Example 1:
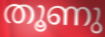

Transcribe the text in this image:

തൂണു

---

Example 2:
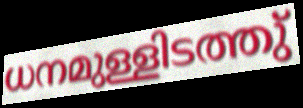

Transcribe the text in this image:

ധനമുള്ളിടത്തു്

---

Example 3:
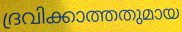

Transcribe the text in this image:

ദ്രവിക്കാത്തതുമായ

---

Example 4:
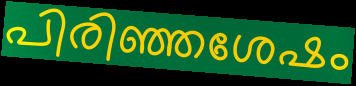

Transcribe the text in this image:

പിരിഞ്ഞശേഷം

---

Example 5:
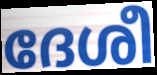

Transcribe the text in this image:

ദേശീ